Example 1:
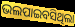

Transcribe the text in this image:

ଭଲପାଇବସିଥିଲା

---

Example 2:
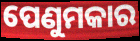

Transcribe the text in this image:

ପେଣୁମକାର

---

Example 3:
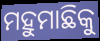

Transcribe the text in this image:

ମହୁମାଛିକୁ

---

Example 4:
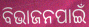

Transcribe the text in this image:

ବିଭାଜନପାଇଁ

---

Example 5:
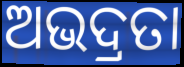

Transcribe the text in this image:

ଅଭଦ୍ରତା